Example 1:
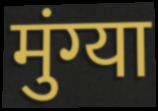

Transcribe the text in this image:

मुंग्या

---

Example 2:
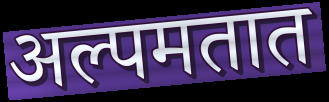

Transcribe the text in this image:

अल्पमतात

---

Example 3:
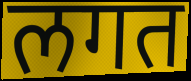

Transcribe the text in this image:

लगत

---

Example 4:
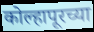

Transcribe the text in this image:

कोल्हापूरच्या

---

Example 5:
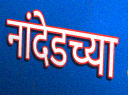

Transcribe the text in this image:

नांदेडच्या